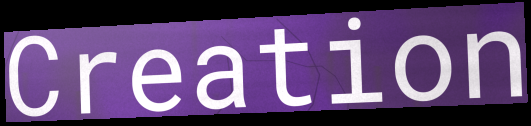
Creation